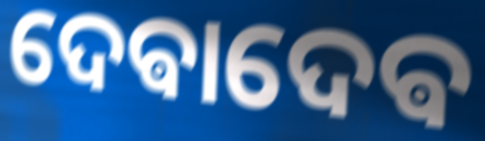
ଦେଵାଦେଵ